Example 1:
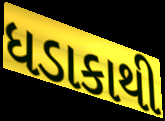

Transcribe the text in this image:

ધડાકાથી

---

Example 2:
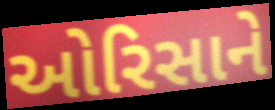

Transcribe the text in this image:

ઓરિસાને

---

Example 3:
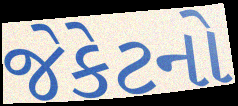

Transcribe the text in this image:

જેકેટનો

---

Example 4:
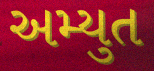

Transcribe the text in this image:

અમ્યુત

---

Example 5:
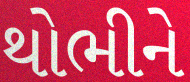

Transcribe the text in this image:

થોભીને